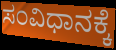
ಸಂವಿಧಾನಕ್ಕೆ